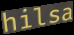
hilsa